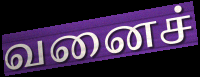
வனைச்